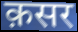
क़सर